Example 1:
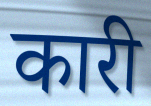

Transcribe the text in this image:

कारी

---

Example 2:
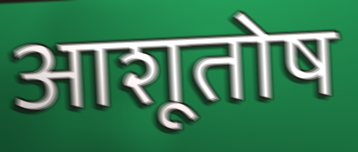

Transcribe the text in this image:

आशूतोष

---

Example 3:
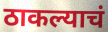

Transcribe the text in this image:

ठाकल्याचं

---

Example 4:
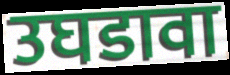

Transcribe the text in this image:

उघडावा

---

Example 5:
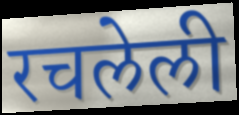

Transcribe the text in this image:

रचलेली